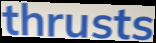
thrusts